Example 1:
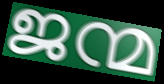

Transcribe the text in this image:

ജന്മ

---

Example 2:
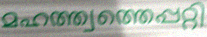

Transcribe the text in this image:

മഹത്ത്വത്തെപ്പറ്റി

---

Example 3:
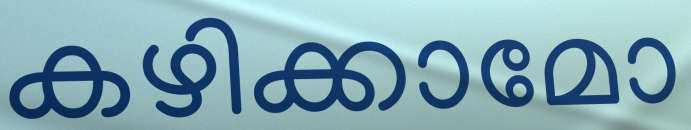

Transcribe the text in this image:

കഴിക്കാമോ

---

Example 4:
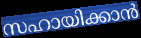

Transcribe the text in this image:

സഹായിക്കാൻ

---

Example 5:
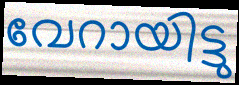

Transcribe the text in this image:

വേറായിട്ടു